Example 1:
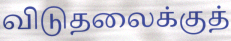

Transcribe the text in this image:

விடுதலைக்குத்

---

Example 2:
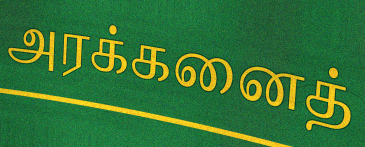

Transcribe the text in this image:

அரக்கனைத்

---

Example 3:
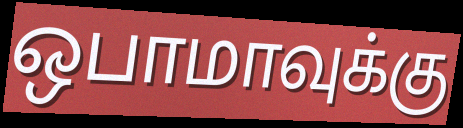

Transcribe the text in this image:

ஒபாமாவுக்கு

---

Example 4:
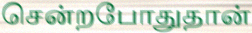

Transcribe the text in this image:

சென்றபோதுதான்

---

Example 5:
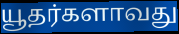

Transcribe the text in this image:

யூதர்களாவது